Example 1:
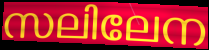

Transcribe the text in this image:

സലിലേന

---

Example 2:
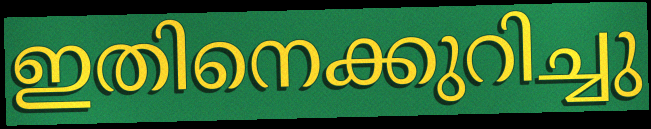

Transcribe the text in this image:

ഇതിനെക്കുറിച്ചു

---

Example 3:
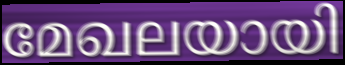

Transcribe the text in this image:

മേഖലയായി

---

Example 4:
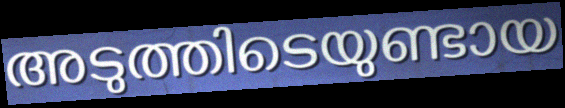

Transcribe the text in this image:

അടുത്തിടെയുണ്ടായ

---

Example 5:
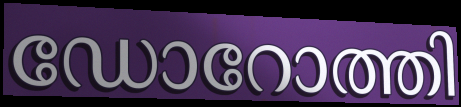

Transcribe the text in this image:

ഡോറോത്തി